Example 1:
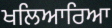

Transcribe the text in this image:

ਖਲਿਆਰਿਆ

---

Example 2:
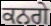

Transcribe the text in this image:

ਕਨਗੇ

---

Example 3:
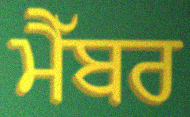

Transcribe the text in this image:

ਮੈੱਬਰ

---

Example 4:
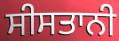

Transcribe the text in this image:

ਸੀਸਤਾਨੀ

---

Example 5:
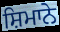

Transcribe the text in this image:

ਸ਼ਿਮਾਨੇ